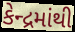
કેન્દ્રમાંથી